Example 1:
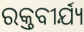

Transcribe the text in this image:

ରକ୍ତବୀର୍ଯ୍ୟ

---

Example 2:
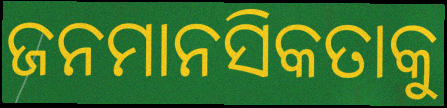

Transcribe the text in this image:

ଜନମାନସିକତାକୁ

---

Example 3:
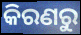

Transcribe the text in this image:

କିରଣରୁ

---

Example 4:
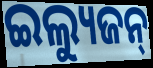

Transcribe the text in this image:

ଇଲ୍ୟୁଜନ୍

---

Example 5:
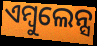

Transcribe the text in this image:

ଏମ୍ବୁଲେନ୍ସ